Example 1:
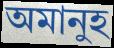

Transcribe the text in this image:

অমানুহ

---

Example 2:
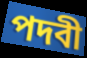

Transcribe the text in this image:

পদবী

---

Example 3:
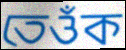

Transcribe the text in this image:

তেওঁক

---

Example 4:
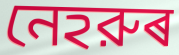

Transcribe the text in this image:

নেহৰুৰ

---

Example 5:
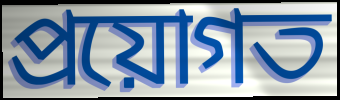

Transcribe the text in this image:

প্ৰয়োগত